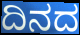
ದಿನದ